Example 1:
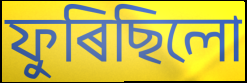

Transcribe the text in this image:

ফুৰিছিলো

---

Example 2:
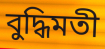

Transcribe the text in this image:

বুদ্ধিমতী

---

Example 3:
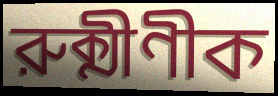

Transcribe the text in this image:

ৰুক্মীণীক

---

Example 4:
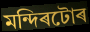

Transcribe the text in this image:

মন্দিৰটোৰ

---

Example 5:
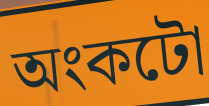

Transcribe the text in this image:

অংকটো